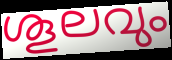
ശൂലവും